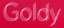
Goldy